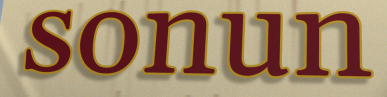
sonun